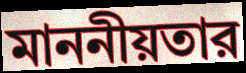
মাননীয়তার